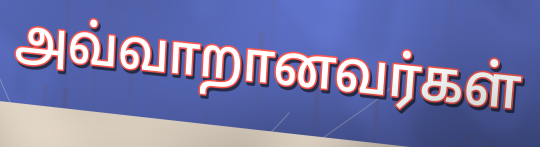
அவ்வாறானவர்கள்